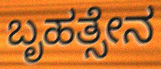
ಬೃಹತ್ಸೇನ